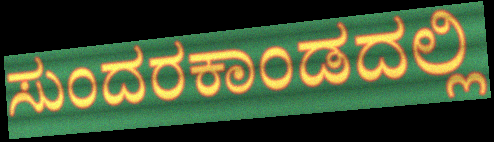
ಸುಂದರಕಾಂಡದಲ್ಲಿ